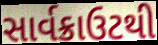
સાર્વક્રાઉટથી